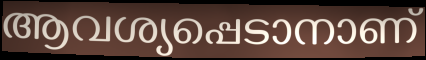
ആവശ്യപ്പെടാനാണ്